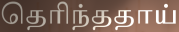
தெரிந்ததாய்